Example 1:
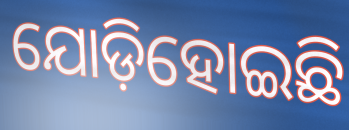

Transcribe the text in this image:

ଯୋଡ଼ିହୋଇଛି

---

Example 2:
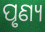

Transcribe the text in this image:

ପୃଣ୍ୟ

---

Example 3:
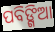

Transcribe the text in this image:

ପବିଙ୍ଗିଆ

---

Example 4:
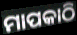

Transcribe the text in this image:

ମାପକାଠି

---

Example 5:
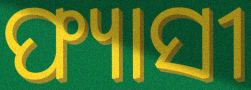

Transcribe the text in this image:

ଫ୍ୟାସୀ